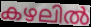
കഴലിൽ